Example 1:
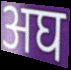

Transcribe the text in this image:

अघ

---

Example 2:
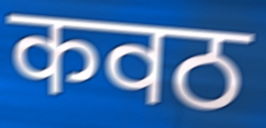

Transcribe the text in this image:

कवठ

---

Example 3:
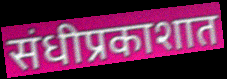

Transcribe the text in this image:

संधीप्रकाशात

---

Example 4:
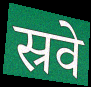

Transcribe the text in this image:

स्रवे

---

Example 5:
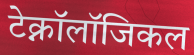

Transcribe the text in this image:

टेक्नॉलॉजिकल